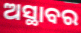
ଅସ୍ଥାବର